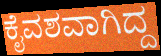
ಕೈವಶವಾಗಿದ್ದ